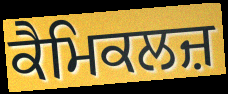
ਕੈਮਿਕਲਜ਼